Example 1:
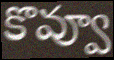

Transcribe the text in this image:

కొవ్వూ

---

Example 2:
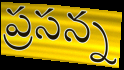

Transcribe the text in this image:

ప్రసన్న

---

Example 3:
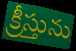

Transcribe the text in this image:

క్రీస్తును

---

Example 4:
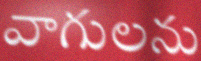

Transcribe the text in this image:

వాగులను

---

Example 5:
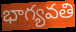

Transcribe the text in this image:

భాగ్యవతి